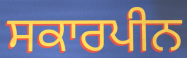
ਸਕਾਰਪੀਨ